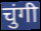
चुंगी